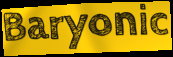
Baryonic